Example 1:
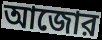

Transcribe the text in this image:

আজোর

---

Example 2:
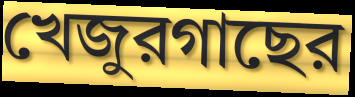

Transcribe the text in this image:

খেজুরগাছের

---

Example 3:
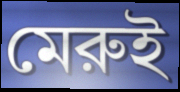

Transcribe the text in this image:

মেরুই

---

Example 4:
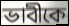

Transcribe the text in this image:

ভাবীকে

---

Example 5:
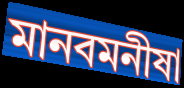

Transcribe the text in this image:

মানবমনীষা